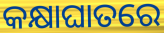
କକ୍ଷାଘାତରେ